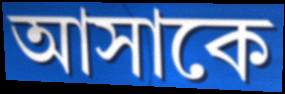
আসাকে